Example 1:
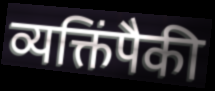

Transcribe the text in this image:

व्यक्तिंपैकी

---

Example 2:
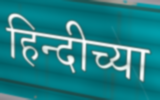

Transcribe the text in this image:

हिन्दीच्या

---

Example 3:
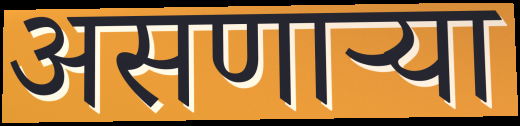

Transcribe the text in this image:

असणार्‍या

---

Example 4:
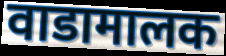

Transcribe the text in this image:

वाडामालक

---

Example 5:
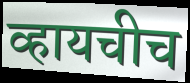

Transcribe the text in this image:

व्हायचीच